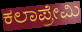
ಕಲಾಪ್ರೇಮಿ